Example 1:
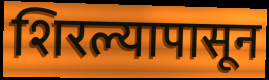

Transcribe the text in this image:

शिरल्यापासून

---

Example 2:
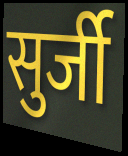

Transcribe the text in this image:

सुर्जी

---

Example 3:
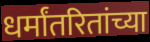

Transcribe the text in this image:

धर्मांतरितांच्या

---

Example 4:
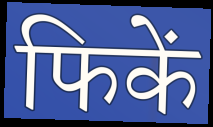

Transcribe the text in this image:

फिकें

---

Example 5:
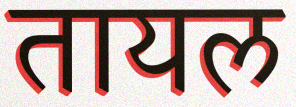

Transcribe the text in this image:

तायल